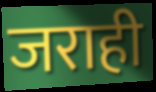
जराही